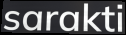
sarakti